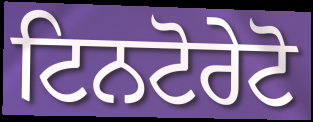
ਟਿਨਟੋਰੇਟੋ